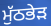
ਮੁੱਠਭੇੜ